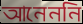
আনেননি